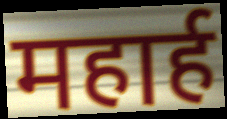
महार्ह